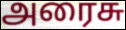
அரைசு